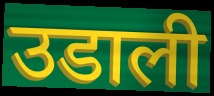
उडाली